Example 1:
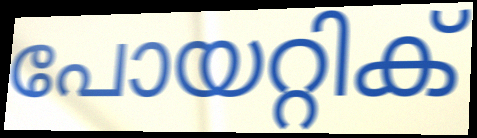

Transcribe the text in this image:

പോയറ്റിക്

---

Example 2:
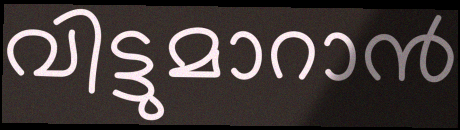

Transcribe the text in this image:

വിട്ടുമാറാൻ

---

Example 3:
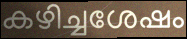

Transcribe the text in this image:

കഴിച്ചശേഷം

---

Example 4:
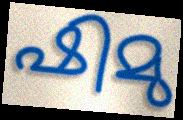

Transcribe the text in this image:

ഷിമു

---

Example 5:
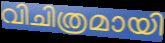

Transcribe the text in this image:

വിചിത്രമായി